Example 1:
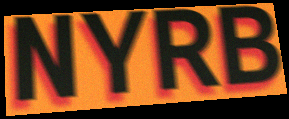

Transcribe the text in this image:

NYRB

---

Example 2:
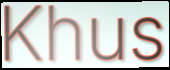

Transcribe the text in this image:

Khus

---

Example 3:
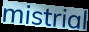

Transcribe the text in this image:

mistrial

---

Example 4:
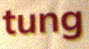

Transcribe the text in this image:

tung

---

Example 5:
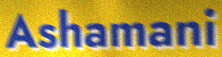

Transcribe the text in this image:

Ashamani